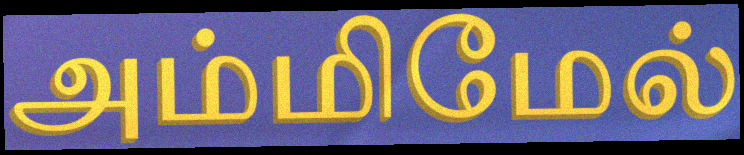
அம்மிமேல்